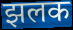
झलक